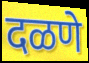
दळणे